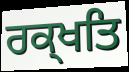
ਰਕ੍ਖਤਿ